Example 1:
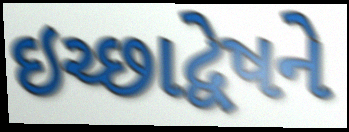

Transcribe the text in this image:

ઇચ્છાદ્વેષને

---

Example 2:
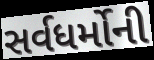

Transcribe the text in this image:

સર્વધર્મોની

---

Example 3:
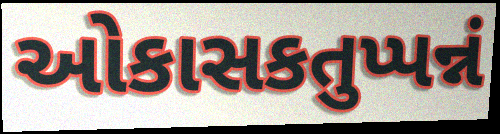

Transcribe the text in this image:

ઓકાસકતુપ્પન્નં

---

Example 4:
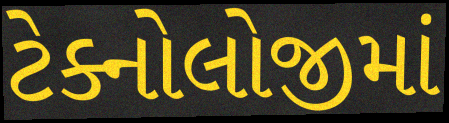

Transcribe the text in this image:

ટેક્નોલોજીમાં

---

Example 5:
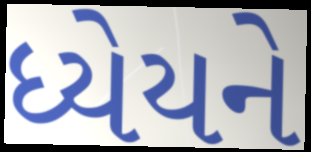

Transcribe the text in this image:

ધ્યેયને